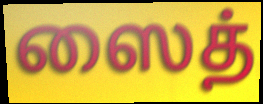
ஸைத்